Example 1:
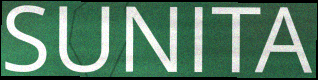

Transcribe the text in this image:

SUNITA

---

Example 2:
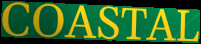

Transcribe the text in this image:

COASTAL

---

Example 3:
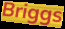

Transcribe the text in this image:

Briggs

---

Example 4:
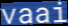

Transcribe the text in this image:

vaai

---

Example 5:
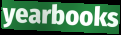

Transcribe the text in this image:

yearbooks